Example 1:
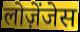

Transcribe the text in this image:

लोज़ेंजेस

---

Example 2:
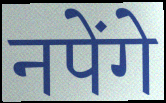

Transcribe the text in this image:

नपेंगे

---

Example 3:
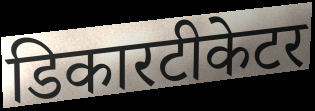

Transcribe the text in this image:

डिकारटीकेटर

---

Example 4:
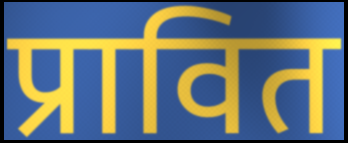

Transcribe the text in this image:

प्रावित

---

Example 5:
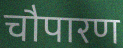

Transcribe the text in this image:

चौपारण